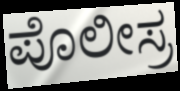
ಪೊಲೀಸ್ರ